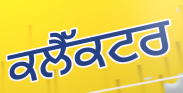
ਕਲੈੱਕਟਰ